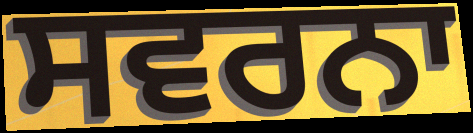
ਸਵਰਨਾ